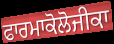
ਫਾਰਮਾਕੋਲੋਜੀਕਾ